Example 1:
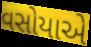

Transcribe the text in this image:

વસોયાએ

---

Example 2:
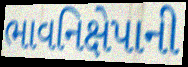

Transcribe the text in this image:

ભાવનિક્ષેપાની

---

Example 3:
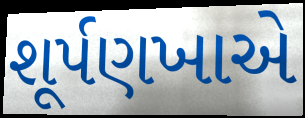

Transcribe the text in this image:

શૂર્પણખાએ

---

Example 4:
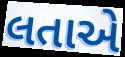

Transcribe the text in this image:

લતાએ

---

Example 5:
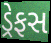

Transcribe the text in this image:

ડ્રેફસ